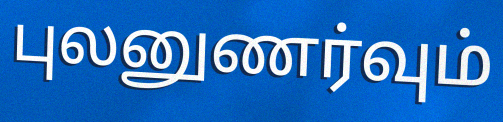
புலனுணர்வும்